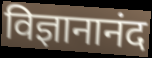
विज्ञानानंद